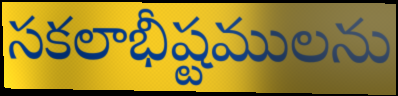
సకలాభీష్టములను